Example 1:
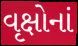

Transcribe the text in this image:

વૃક્ષોનાં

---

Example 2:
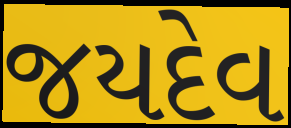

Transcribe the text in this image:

જયદેવ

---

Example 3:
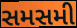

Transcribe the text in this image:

સમસમી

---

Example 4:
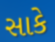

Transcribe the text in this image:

સાકે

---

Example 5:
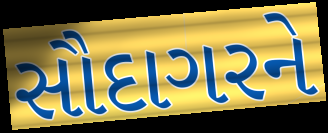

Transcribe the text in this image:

સૌદાગરને